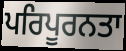
ਪਰਿਪੂਰਨਤਾ